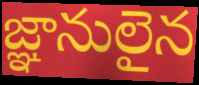
జ్ఞానులైన